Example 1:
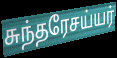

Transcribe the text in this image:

சுந்தரேசய்யர்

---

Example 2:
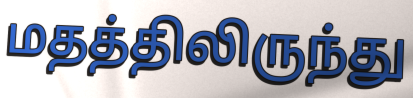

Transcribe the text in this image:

மதத்திலிருந்து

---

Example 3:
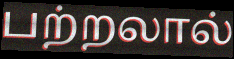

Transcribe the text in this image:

பற்றலால்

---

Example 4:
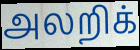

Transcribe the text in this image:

அலறிக்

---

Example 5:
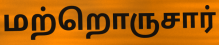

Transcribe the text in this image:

மற்றொருசார்